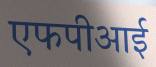
एफपीआई